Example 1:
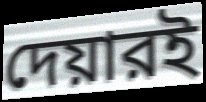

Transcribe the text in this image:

দেয়ারই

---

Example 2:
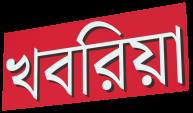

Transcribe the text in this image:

খবরিয়া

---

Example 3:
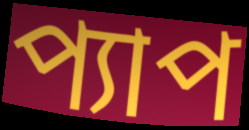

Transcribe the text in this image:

প্যাপ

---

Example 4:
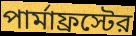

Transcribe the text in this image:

পার্মাফ্রস্টের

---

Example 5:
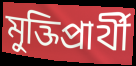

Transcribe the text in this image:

মুক্তিপ্রার্থী